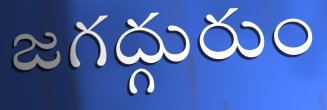
జగద్గురుం